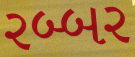
રબ્બર